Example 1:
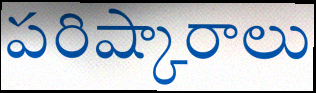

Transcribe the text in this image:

పరిష్కారాలు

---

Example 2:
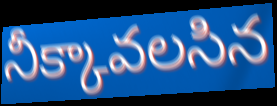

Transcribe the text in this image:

నీక్కావలసిన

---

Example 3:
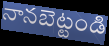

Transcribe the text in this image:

నానబెట్టండి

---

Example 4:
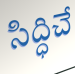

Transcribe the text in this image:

సిద్ధిచే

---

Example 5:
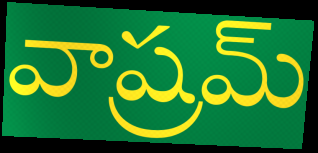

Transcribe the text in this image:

వాష్రమ్